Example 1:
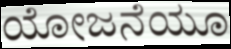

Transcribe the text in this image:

ಯೋಜನೆಯೂ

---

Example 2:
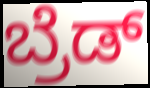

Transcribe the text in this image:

ಬ್ರೆಡ್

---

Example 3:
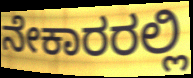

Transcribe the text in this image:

ನೇಕಾರರಲ್ಲಿ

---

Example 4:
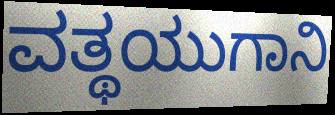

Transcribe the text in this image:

ವತ್ಥಯುಗಾನಿ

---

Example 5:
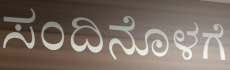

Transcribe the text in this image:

ಸಂದಿನೊಳಗೆ